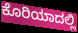
ಕೊರಿಯಾದಲ್ಲಿ